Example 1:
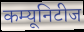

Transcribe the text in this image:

कम्यूनिटीज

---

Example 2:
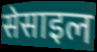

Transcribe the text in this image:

सेसाइल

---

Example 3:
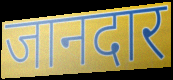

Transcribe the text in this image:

जानदार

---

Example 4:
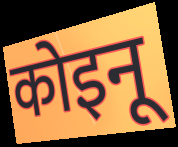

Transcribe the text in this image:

कोइनू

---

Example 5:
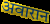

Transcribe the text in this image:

अवारान